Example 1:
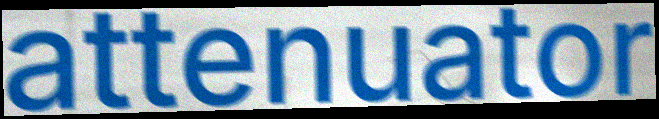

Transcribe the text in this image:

attenuator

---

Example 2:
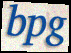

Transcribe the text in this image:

bpg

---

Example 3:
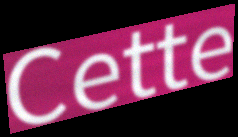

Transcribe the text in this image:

Cette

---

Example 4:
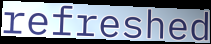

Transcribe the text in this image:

refreshed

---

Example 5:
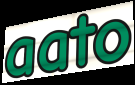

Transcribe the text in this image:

aato